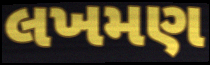
લખમણ